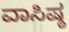
ವಾಸಿಷ್ಠ